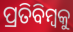
ପ୍ରତିବିମ୍ବକୁ